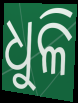
ଧୁଳି